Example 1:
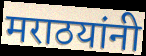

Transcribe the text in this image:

मराठयांनी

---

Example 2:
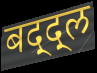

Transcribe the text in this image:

बद्द्ल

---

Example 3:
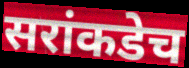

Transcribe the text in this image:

सरांकडेच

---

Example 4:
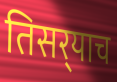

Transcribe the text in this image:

तिसर्‍याच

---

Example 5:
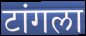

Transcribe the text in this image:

टांगला